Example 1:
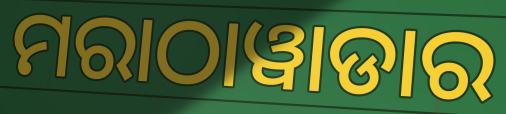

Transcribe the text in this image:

ମରାଠାୱାଡାର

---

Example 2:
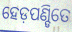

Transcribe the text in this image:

ହେଡ଼ପଣ୍ଡିତେ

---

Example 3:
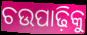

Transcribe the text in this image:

ଚଉପାଢ଼ିକୁ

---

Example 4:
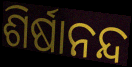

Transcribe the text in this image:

ଶିର୍ଷାନନ୍ଦ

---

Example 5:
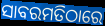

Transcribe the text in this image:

ସାବରମତିଠାରେ